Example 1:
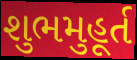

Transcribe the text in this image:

શુભમુહૂર્ત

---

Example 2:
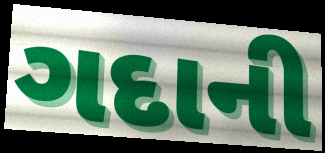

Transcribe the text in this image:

ગદાની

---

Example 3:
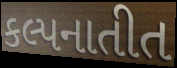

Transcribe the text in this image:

કલ્પનાતીત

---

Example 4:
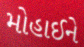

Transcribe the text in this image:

મોહાઈને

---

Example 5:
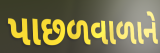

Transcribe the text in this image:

પાછળવાળાને